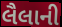
લૈલાની